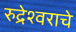
रुद्रेश्वराचे